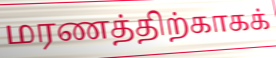
மரணத்திற்காகக்